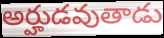
అర్హుడవుతాడు